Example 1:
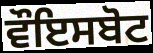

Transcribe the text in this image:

ਵੌਇਸਬੋਟ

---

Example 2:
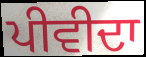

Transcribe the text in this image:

ਪੀਵੀਦਾ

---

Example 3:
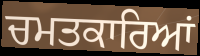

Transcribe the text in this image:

ਚਮਤਕਾਰਿਆਂ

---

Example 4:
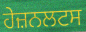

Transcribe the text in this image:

ਹੇਜ਼ਨਲਟਸ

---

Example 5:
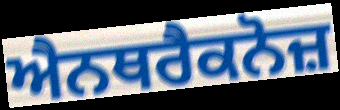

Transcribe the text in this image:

ਐਨਥਰੈਕਨੋਜ਼